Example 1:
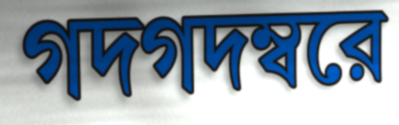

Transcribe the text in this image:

গদগদম্বরে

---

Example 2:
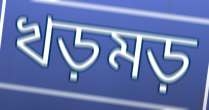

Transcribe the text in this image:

খড়মড়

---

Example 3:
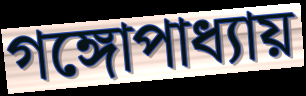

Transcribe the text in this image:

গঙ্গোপাধ্যায়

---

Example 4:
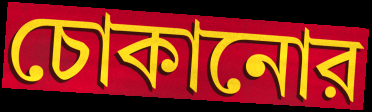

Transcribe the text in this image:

চোকানোর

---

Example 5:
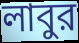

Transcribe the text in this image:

লাবুর